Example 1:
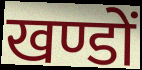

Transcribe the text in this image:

खण्डों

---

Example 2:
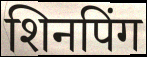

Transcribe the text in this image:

शिनपिंग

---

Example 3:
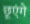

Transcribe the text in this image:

छूएंगे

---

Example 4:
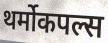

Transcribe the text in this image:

थर्मोकपल्स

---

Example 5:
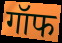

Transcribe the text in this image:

गॉफ